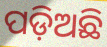
ପଡ଼ିଅଛି